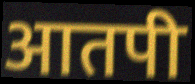
आतपी